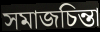
সমাজচিন্তা